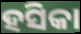
ହସିକା